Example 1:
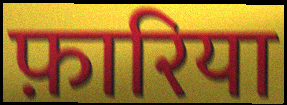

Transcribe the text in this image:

फ़ारिया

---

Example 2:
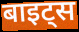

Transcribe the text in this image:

बाइट्स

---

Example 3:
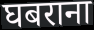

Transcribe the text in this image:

घबराना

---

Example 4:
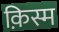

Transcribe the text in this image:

क़िस्म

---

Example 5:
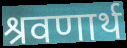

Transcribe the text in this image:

श्रवणार्थ